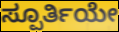
ಸ್ಪೂರ್ತಿಯೇ